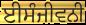
ਈਸੰਜੀਵਨੀ